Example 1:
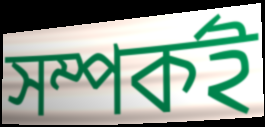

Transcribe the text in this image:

সম্পর্কই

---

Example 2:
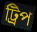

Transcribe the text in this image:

ট্রিপ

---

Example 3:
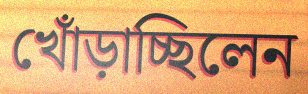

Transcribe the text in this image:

খোঁড়াচ্ছিলেন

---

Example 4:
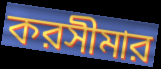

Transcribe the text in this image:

করসীমার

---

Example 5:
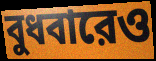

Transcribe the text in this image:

বুধবারেও